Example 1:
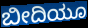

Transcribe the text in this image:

ಬೀದಿಯೂ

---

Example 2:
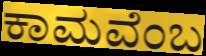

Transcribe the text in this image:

ಕಾಮವೆಂಬ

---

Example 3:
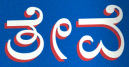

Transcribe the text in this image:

ತೇವೆ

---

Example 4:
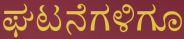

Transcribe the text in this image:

ಘಟನೆಗಳಿಗೂ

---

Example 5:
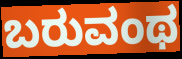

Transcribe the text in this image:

ಬರುವಂಥ